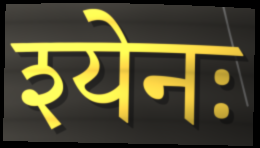
श्येनः